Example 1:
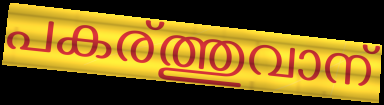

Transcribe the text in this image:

പകര്ത്തുവാന്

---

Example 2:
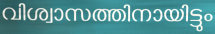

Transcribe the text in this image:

വിശ്വാസത്തിനായിട്ടും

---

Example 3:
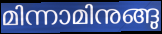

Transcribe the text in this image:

മിന്നാമിനുങ്ങു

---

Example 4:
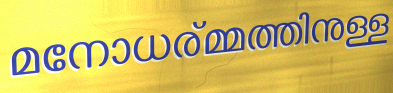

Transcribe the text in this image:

മനോധര്മ്മത്തിനുള്ള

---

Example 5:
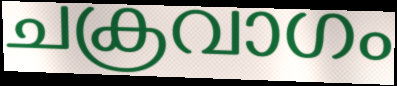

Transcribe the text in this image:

ചക്രവാഗം